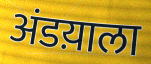
अंडय़ाला